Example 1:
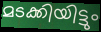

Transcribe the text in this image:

മടക്കിയിട്ടും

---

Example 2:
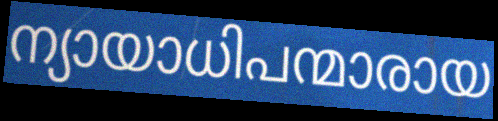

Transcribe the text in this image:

ന്യായാധിപന്മാരായ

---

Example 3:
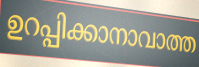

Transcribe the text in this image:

ഉറപ്പിക്കാനാവാത്ത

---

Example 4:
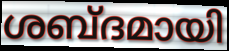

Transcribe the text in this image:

ശബ്ദമായി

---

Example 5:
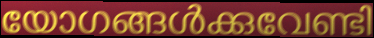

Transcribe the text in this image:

യോഗങ്ങൾക്കുവേണ്ടി